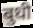
बुधी